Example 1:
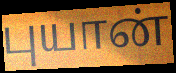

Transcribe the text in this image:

புயான்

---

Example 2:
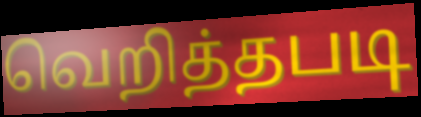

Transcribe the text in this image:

வெறித்தபடி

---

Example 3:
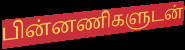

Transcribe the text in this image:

பின்னணிகளுடன்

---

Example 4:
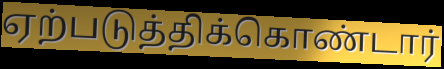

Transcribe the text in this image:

ஏற்படுத்திக்கொண்டார்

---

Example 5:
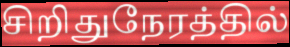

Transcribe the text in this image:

சிறிதுநேரத்தில்